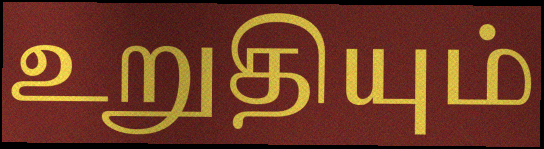
உறுதியும்